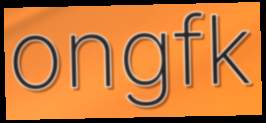
ongfk